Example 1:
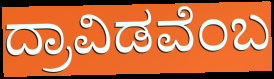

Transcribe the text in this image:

ದ್ರಾವಿಡವೆಂಬ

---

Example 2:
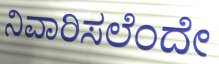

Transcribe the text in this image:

ನಿವಾರಿಸಲೆಂದೇ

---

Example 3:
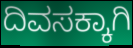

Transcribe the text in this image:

ದಿವಸಕ್ಕಾಗಿ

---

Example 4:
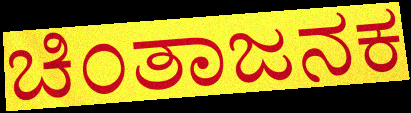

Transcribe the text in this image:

ಚಿಂತಾಜನಕ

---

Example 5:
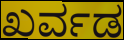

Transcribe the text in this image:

ಖರ್ವಡ